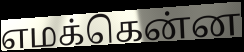
எமக்கென்ன